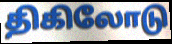
திகிலோடு